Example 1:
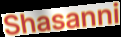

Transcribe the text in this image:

Shasanni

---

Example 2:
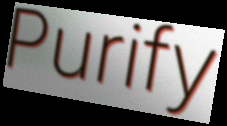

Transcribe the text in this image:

Purify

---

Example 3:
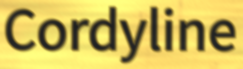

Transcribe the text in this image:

Cordyline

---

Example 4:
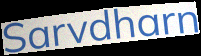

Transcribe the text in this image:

Sarvdharn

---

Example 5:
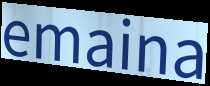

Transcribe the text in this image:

emaina